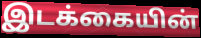
இடக்கையின்